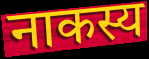
नाकस्य